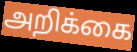
அறிக்கை